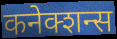
कनेक्शन्स